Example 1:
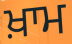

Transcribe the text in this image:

ਖ਼ਾਮ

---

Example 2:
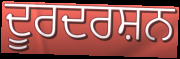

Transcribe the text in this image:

ਦੂਰਦਰਸ਼ਨ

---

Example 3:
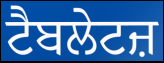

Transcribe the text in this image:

ਟੈਬਲੇਟਜ਼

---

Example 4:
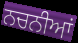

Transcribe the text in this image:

ਨਚਨੀਆਂ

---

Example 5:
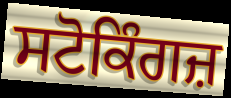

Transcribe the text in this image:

ਸਟੋਕਿੰਗਜ਼